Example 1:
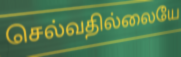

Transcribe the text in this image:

செல்வதில்லையே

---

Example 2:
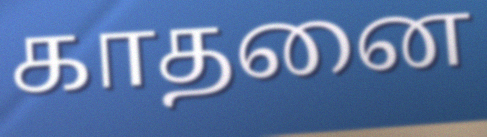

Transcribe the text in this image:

காதனை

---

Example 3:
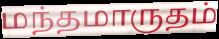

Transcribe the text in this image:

மந்தமாருதம்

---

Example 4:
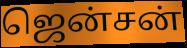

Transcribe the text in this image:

ஜென்சன்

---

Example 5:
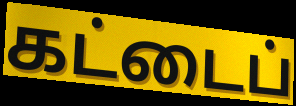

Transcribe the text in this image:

கட்டைப்